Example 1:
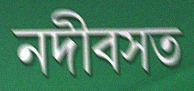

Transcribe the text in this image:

নদীবসত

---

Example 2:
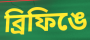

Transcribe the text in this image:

ব্রিফিঙে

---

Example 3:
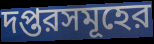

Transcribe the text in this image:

দপ্তরসমূহের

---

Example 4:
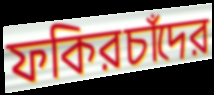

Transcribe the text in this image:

ফকিরচাঁদের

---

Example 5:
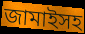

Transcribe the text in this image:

জামাইসহ